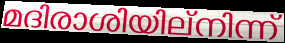
മദിരാശിയില്നിന്ന്